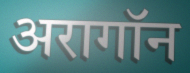
अरागॉन